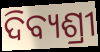
ଦିବ୍ୟଶ୍ରୀ